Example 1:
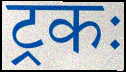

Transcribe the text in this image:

ट्रकः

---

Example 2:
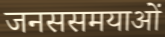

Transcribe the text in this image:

जनससमयाओं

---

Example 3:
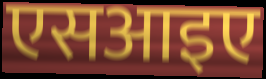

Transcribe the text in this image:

एसआइए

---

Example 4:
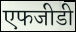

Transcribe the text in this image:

एफजीडी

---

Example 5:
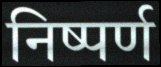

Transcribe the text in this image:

निष्पर्ण